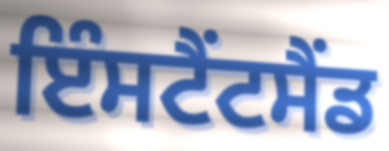
ਇੰਸਟੈਂਟਸੈਂਡ